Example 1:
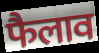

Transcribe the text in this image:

फैलाव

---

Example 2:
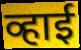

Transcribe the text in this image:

व्हाई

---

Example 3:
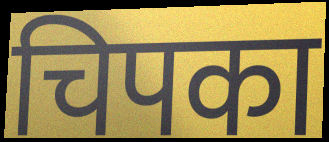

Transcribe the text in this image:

चिपका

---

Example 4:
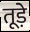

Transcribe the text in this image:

तूड़े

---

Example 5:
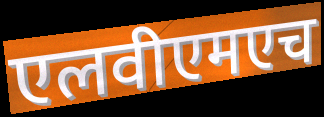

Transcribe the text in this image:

एलवीएमएच